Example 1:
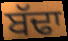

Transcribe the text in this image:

ਬੱਢਾ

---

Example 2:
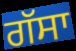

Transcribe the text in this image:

ਗੱਸਾ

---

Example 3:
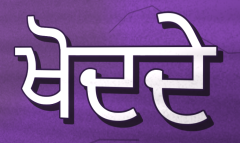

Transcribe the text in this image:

ਖੋਦਦੇ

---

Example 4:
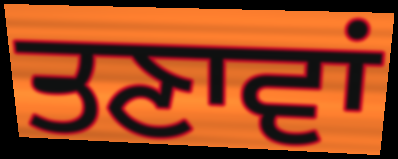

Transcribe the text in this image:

ਤਣਾਵਾਂ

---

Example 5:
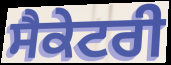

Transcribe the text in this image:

ਸੈਕੇਟਰੀ